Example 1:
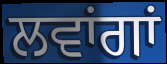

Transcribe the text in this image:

ਲਵਾਂਗਾਂ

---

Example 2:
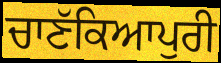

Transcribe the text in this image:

ਚਾਣੱਕਿਆਪੁਰੀ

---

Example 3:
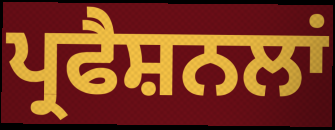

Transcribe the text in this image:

ਪ੍ਰਫੈਸ਼ਨਲਾਂ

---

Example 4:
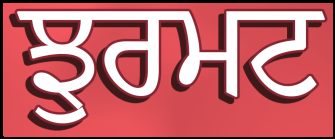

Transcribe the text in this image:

ਝੁਰਮਟ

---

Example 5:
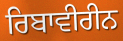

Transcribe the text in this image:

ਰਿਬਾਵੀਰੀਨ